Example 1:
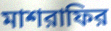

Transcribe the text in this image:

মাশরাফির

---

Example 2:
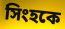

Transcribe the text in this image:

সিংহকে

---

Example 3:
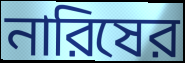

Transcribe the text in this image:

নারিষের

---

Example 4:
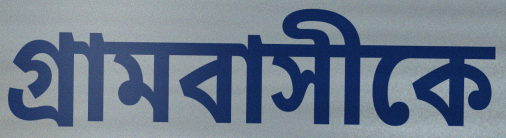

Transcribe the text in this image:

গ্রামবাসীকে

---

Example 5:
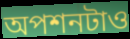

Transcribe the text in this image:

অপশনটাও